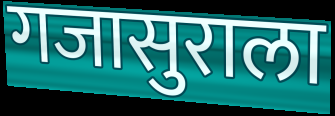
गजासुराला